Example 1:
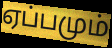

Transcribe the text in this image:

ஏப்பமும்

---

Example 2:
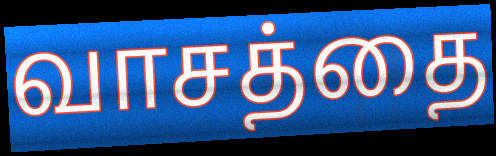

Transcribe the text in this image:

வாசத்தை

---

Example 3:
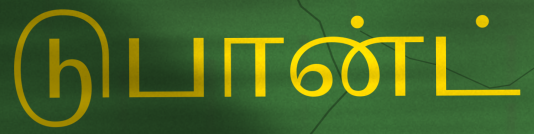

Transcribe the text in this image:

டுபான்ட்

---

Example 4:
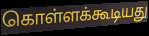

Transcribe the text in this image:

கொள்ளக்கூடியது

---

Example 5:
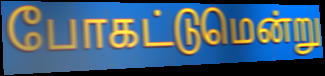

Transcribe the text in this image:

போகட்டுமென்று